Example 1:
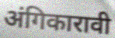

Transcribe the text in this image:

अंगिकारावी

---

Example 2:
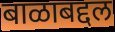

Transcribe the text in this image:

बाळाबद्दल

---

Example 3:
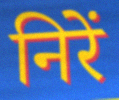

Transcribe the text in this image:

निरें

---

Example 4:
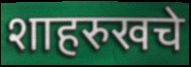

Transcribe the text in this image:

शाहरुखचे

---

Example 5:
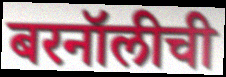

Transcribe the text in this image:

बरनॉलीची